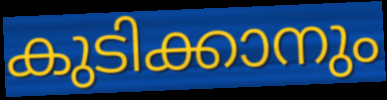
കുടിക്കാനും